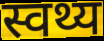
स्वथ्य